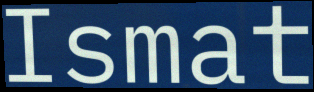
Ismat